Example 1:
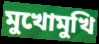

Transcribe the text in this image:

মুখোমুখি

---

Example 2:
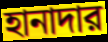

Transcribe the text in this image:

হানাদার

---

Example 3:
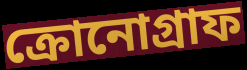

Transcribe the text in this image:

ক্রোনোগ্রাফ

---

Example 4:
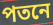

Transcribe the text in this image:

পতনে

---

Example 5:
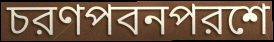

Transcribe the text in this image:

চরণপবনপরশে